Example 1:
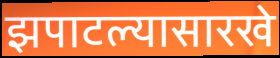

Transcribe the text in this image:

झपाटल्यासारखे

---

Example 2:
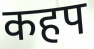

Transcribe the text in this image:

कहप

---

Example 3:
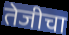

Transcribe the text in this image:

तेजीचा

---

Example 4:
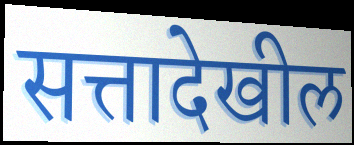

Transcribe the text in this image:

सत्तादेखील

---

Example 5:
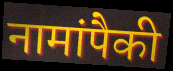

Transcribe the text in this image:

नामांपैकी